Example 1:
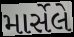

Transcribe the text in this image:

માર્સેલે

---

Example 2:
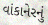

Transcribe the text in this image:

વાંકાનેરનું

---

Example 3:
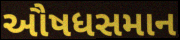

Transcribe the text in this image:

ઔષધસમાન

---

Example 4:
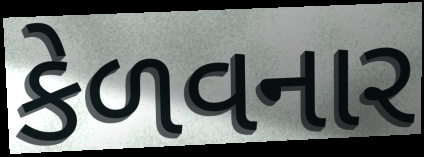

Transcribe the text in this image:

કેળવનાર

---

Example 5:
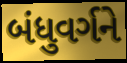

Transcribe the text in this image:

બંધુવર્ગને